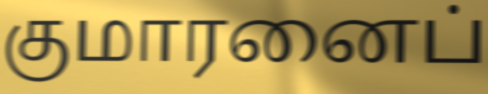
குமாரனைப்